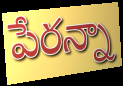
పేరన్నా